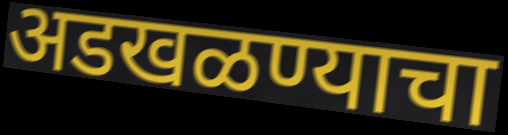
अडखळण्याचा